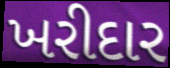
ખરીદાર